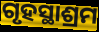
ଗୃହସ୍ଥାଶ୍ରମ